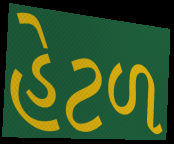
હેટળ